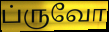
ப்ருவோ